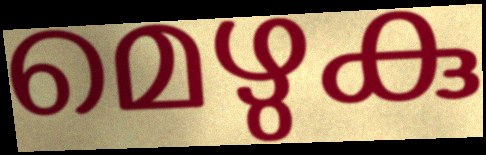
മെഴുകു